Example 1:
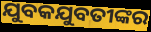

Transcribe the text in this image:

ଯୁବକଯୁବତୀଙ୍କର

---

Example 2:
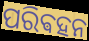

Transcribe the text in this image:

ପରିଵହନ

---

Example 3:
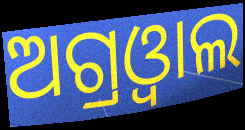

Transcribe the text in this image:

ଅଗ୍ରଓ୍ୱାଲ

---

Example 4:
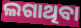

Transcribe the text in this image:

ଲଗାଥିବା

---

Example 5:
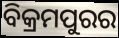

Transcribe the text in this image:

ବିକ୍ରମପୁରର